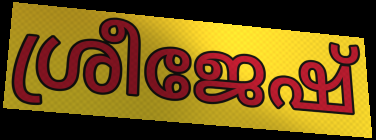
ശ്രീജേഷ്